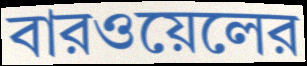
বারওয়েলের